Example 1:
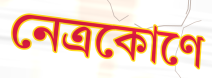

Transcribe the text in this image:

নেত্রকোণে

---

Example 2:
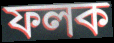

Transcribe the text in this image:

ফলক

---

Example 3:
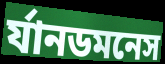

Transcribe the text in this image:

র্যানডমনেস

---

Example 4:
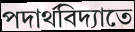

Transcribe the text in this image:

পদার্থবিদ্যাতে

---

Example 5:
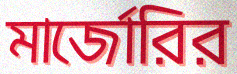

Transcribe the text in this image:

মার্জোরির